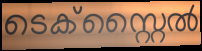
ടെക്സ്റ്റൈൽ